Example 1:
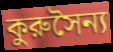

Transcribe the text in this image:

কুরুসৈন্য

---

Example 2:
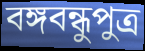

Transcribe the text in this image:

বঙ্গবন্ধুপুত্র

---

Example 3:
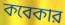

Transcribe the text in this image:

কবেকার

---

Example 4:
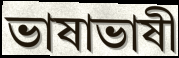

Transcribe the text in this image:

ভাষাভাষী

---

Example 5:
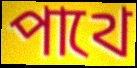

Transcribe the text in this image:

পাথে